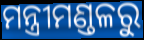
ମନ୍ତ୍ରୀମଣ୍ଡଳରୁ